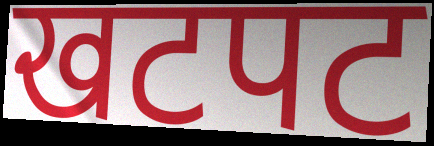
खटपट